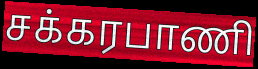
சக்கரபாணி